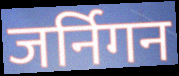
जर्निगन